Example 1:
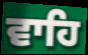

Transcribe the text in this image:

ਵਾਹਿ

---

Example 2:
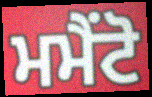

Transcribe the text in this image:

ਮਮੈਂਟੋ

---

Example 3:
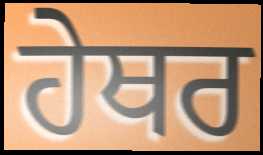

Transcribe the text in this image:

ਹੇਥਰ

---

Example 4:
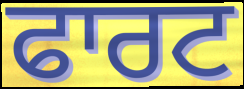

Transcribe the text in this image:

ਫਾਰਟ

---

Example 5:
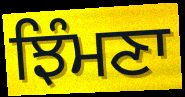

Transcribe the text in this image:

ਝਿੰਮਣਾ